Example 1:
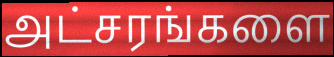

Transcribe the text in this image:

அட்சரங்களை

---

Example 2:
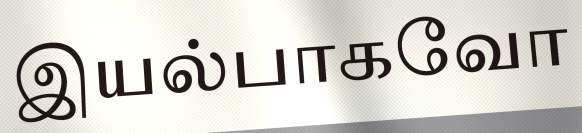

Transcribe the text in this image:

இயல்பாகவோ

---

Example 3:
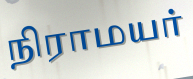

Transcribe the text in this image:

நிராமயர்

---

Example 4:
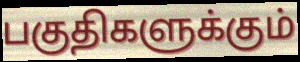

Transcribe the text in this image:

பகுதிகளுக்கும்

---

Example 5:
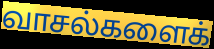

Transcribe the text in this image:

வாசல்களைக்